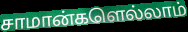
சாமான்களெல்லாம்